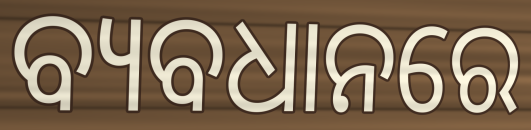
ବ୍ୟବଧାନରେ